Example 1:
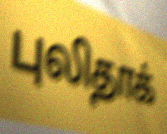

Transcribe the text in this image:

புலிதாக்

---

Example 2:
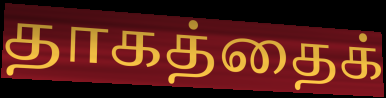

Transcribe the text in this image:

தாகத்தைக்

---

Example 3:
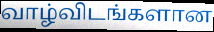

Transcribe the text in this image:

வாழ்விடங்களான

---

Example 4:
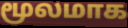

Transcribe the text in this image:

மூலமாக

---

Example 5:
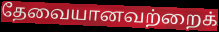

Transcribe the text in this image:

தேவையானவற்றைக்